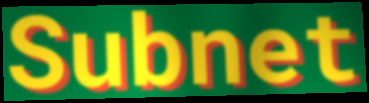
Subnet